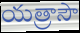
యత్రాసౌ